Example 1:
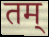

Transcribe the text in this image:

तम्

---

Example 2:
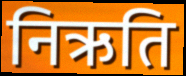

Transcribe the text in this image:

निऋति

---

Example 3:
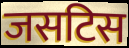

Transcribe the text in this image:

जसटिस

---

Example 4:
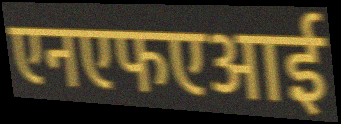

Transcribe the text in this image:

एनएफएआई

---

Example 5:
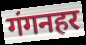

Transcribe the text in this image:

गंगनहर